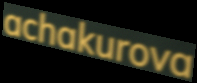
achakurova